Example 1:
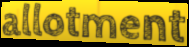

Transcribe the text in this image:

allotment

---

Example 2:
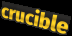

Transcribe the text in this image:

crucible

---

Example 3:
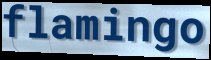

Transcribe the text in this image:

flamingo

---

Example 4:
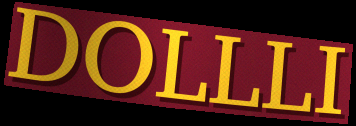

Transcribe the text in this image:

DOLLLI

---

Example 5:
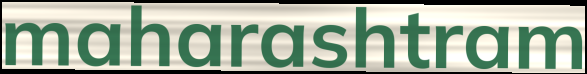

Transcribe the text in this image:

maharashtram